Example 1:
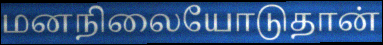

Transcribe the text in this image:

மனநிலையோடுதான்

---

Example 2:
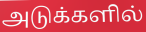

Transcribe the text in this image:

அடுக்களில்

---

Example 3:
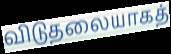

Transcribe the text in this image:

விடுதலையாகத்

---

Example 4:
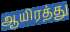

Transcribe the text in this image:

ஆயிரத்து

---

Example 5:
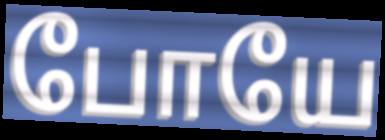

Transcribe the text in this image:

போயே